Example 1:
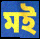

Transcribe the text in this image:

মই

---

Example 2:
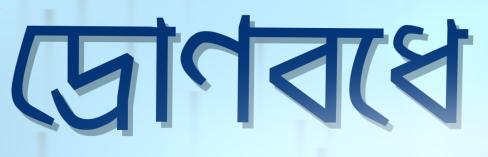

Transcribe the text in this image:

দ্রোণবধে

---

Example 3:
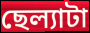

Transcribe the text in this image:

ছেল্যাটা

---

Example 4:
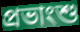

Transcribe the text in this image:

প্রভাংশু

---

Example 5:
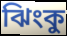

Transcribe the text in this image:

ঝিংকু